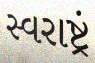
સ્વરાષ્ટ્રં